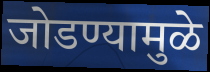
जोडण्यामुळे